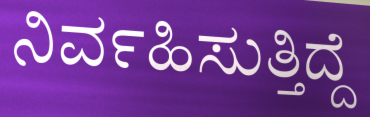
ನಿರ್ವಹಿಸುತ್ತಿದ್ದೆ